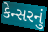
કેન્સરનું